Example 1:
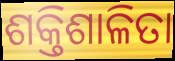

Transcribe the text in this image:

ଶକ୍ତିଶାଳିତା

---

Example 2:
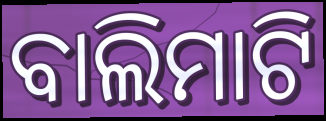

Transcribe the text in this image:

ବାଲିମାଟି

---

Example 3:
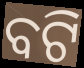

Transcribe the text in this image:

ବଟି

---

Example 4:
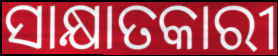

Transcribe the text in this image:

ସାକ୍ଷାତକାରୀ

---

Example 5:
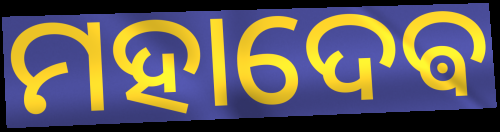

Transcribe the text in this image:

ମହାଦେଵ